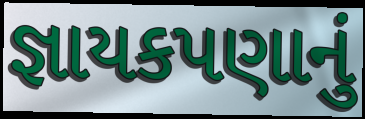
જ્ઞાયકપણાનું